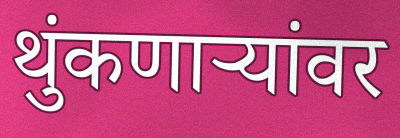
थुंकणाऱ्यांवर